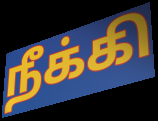
நீக்கி